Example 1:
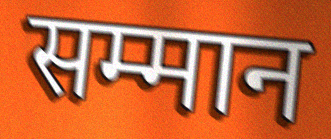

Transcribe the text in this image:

सम्मान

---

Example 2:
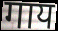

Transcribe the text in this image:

गाय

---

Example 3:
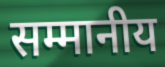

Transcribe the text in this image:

सम्मानीय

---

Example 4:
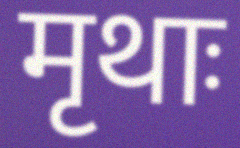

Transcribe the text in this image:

मृथाः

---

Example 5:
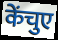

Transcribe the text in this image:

केंचुए